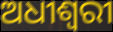
ଅଧୀଶ୍ୱରୀ